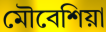
মৌবেশিয়া